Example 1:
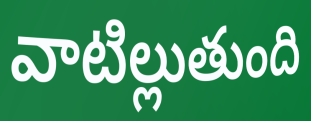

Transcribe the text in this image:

వాటిల్లుతుంది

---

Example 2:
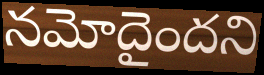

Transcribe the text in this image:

నమోదైందని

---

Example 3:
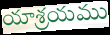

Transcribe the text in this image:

యాశ్రయము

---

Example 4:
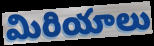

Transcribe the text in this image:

మిరియాలు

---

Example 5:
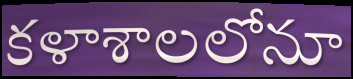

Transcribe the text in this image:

కళాశాలలోనూ